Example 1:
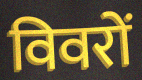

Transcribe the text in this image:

विवरों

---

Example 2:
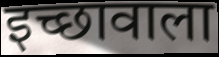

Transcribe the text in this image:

इच्छावाला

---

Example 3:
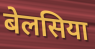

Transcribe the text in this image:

बेलसिया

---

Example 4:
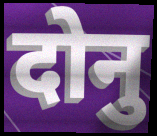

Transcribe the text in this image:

दोनु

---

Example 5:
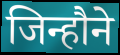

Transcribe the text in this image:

जिन्हौने